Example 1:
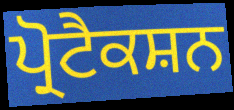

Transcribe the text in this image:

ਪ੍ਰੋਟੈਕਸ਼ਨ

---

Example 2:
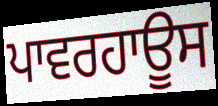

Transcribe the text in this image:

ਪਾਵਰਹਾਊਸ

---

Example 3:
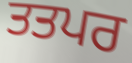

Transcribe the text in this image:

ਤਤਪਰ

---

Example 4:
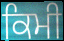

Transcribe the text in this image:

ਕਿਮੀ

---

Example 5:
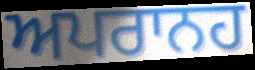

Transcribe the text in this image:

ਅਪਰਾਨਹ